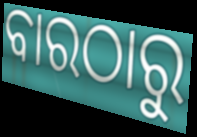
ବାରଠାରୁ